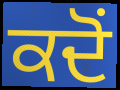
ਕਦੋਂ